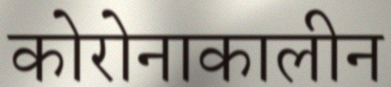
कोरोनाकालीन